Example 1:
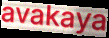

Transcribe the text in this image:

avakaya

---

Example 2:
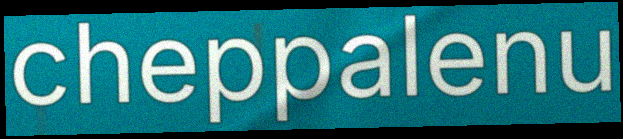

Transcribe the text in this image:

cheppalenu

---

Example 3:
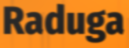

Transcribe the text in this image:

Raduga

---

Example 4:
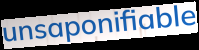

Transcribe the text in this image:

unsaponifiable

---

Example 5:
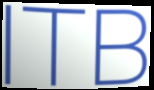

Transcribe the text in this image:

ITB